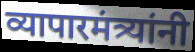
व्यापारमंत्र्यांनी